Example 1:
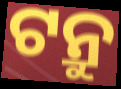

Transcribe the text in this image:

ଟନ୍ରୁ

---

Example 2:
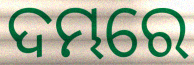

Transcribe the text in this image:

ଦମ୍ଭରେ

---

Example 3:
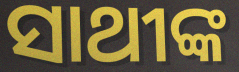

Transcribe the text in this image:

ସାଥୀଙ୍କ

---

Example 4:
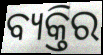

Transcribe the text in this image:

ବ୍ୟକ୍ତିର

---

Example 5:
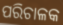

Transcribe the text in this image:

ପରିଚାଳକ